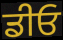
ਡੀਓ